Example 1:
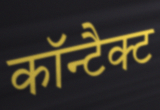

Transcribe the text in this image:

कॉन्टैक्ट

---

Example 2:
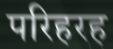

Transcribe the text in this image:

परिहरह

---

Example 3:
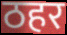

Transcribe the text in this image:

ठहर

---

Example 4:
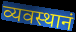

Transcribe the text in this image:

व्यवस्थानं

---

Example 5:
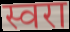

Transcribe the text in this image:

स्वरा